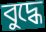
বুদ্ধে